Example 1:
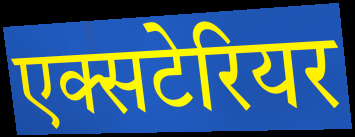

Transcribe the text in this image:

एक्सटेरियर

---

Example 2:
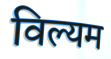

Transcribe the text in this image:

विल्यम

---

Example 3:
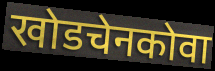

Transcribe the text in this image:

खोडचेनकोवा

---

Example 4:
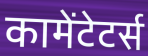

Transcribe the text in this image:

कामेंटेटर्स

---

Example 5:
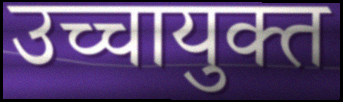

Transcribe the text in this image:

उच्चायुक्त